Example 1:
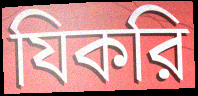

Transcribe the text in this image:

যিকরি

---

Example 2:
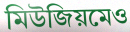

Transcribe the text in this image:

মিউজিয়মেও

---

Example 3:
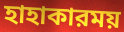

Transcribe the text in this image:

হাহাকারময়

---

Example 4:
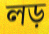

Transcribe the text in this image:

লড়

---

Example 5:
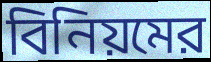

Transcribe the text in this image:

বিনিয়মের